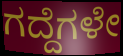
ಗದ್ದೆಗಳೇ